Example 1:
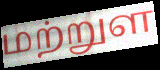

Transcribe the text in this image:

மற்றுள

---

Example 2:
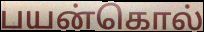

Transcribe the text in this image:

பயன்கொல்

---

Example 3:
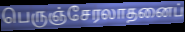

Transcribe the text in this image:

பெருஞ்சேரலாதனைப்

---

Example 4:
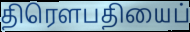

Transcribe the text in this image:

திரெளபதியைப்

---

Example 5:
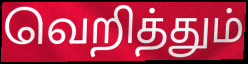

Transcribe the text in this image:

வெறித்தும்